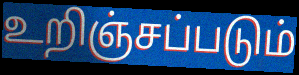
உறிஞ்சப்படும்